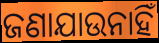
ଜଣାଯାଉନାହିଁ